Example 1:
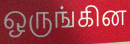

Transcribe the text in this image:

ஒருங்கின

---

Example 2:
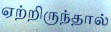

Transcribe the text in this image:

ஏற்றிருந்தால்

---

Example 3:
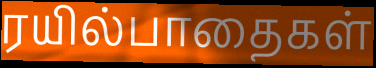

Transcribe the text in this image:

ரயில்பாதைகள்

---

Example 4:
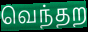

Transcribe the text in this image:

வெந்தற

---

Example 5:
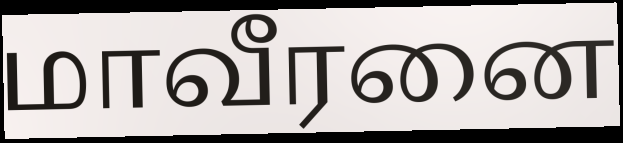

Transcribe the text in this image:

மாவீரனை